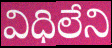
విధిలేని